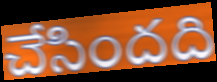
చేసిందది